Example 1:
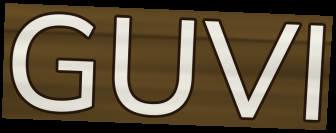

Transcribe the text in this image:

GUVI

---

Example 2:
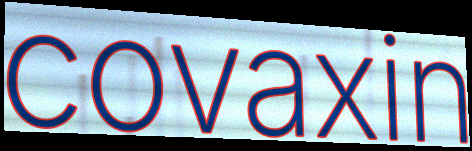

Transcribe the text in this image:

covaxin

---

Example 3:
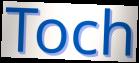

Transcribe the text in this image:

Toch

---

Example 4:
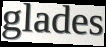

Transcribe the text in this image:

glades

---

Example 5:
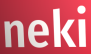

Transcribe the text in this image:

neki